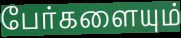
பேர்களையும்